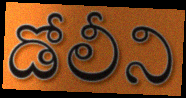
డోలీని